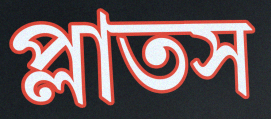
প্লাতস